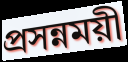
প্রসন্নময়ী